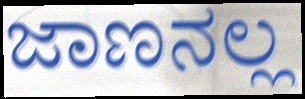
ಜಾಣನಲ್ಲ